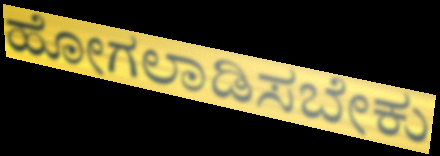
ಹೋಗಲಾಡಿಸಬೇಕು